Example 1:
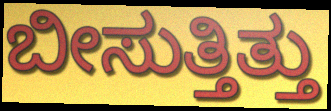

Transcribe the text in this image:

ಬೀಸುತ್ತಿತ್ತು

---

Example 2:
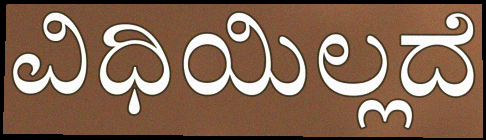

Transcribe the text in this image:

ವಿಧಿಯಿಲ್ಲದೆ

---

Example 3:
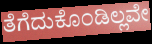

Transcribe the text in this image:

ತೆಗೆದುಕೊಂಡಿಲ್ಲವೇ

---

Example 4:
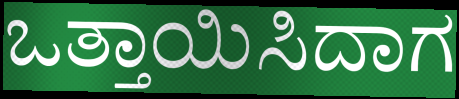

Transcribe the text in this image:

ಒತ್ತಾಯಿಸಿದಾಗ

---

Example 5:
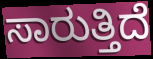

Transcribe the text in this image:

ಸಾರುತ್ತಿದೆ